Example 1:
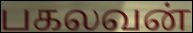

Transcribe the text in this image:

பகலவன்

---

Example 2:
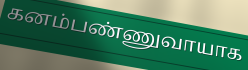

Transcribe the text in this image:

கனம்பண்ணுவாயாக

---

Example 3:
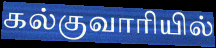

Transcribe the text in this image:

கல்குவாரியில்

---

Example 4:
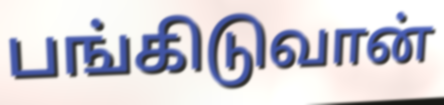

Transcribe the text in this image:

பங்கிடுவான்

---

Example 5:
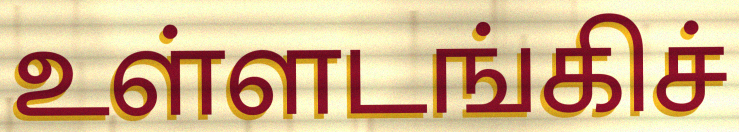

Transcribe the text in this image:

உள்ளடங்கிச்